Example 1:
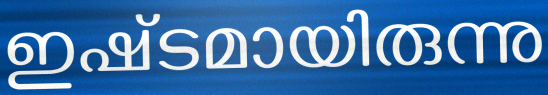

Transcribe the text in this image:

ഇഷ്‌ടമായിരുന്നു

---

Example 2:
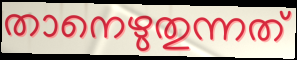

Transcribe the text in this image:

താനെഴുതുന്നത്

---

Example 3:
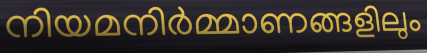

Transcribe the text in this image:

നിയമനിർമ്മാണങ്ങളിലും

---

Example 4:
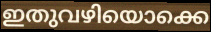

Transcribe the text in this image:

ഇതുവഴിയൊക്കെ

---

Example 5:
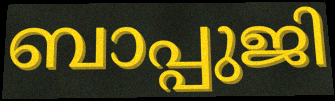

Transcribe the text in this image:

ബാപ്പുജി